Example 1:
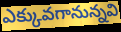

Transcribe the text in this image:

ఎక్కువగానున్నవి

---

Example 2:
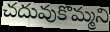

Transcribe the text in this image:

చదువుకొమ్మని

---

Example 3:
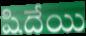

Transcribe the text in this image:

షిదేయి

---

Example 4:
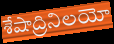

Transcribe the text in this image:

శేషాద్రినిలయో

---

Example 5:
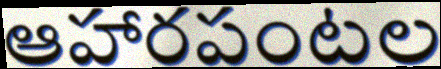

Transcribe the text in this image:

ఆహారపంటల